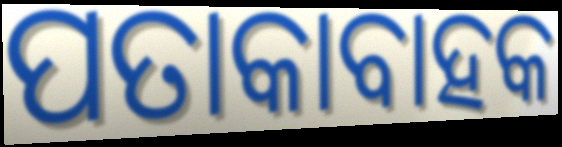
ପତାକାବାହକ